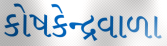
કોષકેન્દ્રવાળા